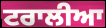
ਟਰਾਲੀਆ